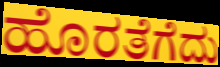
ಹೊರತೆಗೆದು